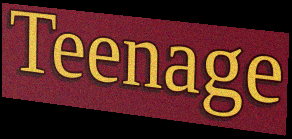
Teenage